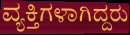
ವ್ಯಕ್ತಿಗಳಾಗಿದ್ದರು